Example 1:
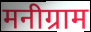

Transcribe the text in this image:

मनीग्राम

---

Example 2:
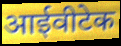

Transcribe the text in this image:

आईवीटेक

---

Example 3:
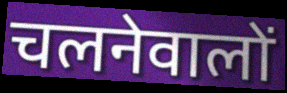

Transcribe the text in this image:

चलनेवालों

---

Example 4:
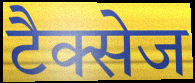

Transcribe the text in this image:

टैक्सेज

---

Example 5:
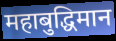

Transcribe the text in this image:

महाबुद्धिमान